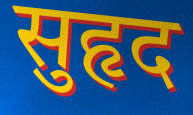
सुहृद